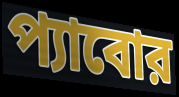
প্যাবোর